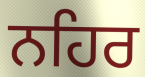
ਨਹਿਰ